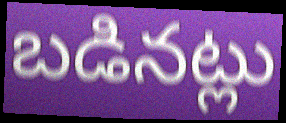
బడినట్లు